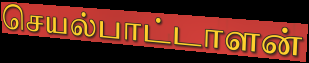
செயல்பாட்டாளன்